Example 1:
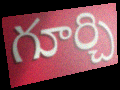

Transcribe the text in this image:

గూర్చి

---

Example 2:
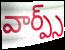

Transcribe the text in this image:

వార్ప్స్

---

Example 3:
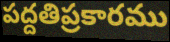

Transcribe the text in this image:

పద్దతిప్రకారము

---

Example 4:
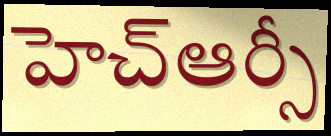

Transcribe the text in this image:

హెచ్ఆర్సీ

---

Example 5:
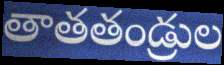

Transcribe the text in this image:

తాతతండ్రుల